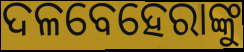
ଦଳବେହେରାଙ୍କୁ